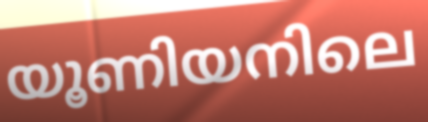
യൂണിയനിലെ